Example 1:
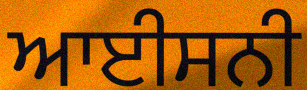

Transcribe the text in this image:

ਆਈਸਨੀ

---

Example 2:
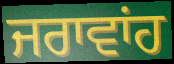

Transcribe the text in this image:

ਜਰਾਵਾਂਹ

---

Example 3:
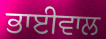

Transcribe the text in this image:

ਭਾਈਵਾਲ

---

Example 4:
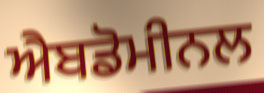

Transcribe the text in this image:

ਐਬਡੋਮੀਨਲ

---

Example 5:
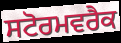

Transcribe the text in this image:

ਸਟੋਰਮਵਰੈਕ